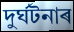
দুৰ্ঘটনাৰ